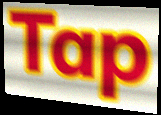
Tap